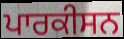
ਪਾਰਕੀਸਨ